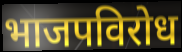
भाजपविरोध